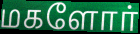
மகளோர்